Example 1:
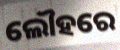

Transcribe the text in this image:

ଲୌହରେ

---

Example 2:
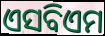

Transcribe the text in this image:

ଏସବିଏମ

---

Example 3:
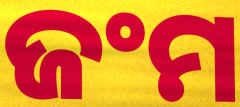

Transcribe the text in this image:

ଜଂମ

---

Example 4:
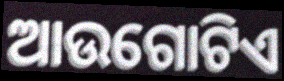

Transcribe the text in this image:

ଆଉଗୋଟିଏ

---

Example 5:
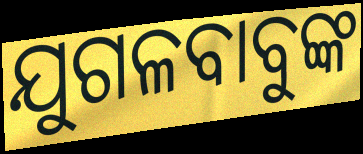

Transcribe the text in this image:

ଯୁଗଳବାବୁଙ୍କ